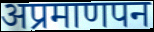
अप्रमाणपन